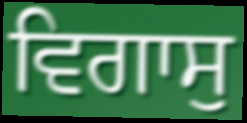
ਵਿਗਾਸੁ